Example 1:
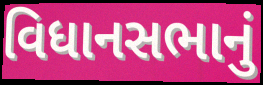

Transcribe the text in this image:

વિધાનસભાનું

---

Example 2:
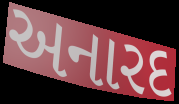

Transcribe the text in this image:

અનારદ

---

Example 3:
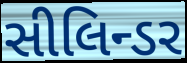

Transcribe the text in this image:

સીલિન્ડર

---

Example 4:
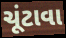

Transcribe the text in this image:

ચૂંટાવા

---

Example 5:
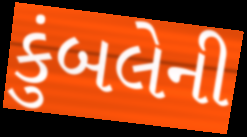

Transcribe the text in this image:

કુંબલેની